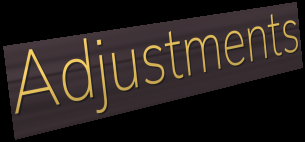
Adjustments